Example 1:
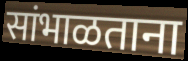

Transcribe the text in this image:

सांभाळताना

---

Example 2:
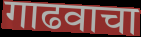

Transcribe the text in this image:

गाढवाचा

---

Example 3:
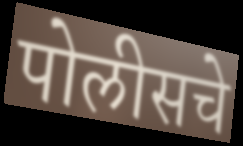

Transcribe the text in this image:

पोलीसचे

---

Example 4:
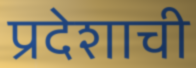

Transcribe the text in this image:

प्रदेशाची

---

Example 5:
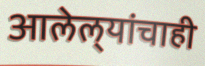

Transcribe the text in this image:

आलेल्यांचाही